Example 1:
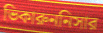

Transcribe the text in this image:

ভিকারুননিসার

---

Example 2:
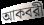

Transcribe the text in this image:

আকবরী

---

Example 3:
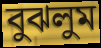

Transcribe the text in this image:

বুঝলুম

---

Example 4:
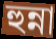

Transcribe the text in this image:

হুন্না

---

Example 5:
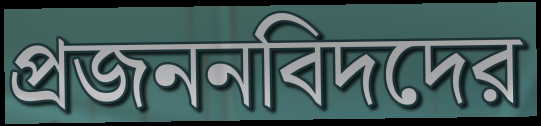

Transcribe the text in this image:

প্রজননবিদদের